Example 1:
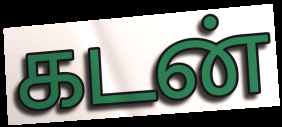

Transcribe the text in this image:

கடன்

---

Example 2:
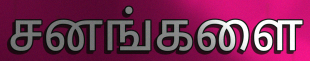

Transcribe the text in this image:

சனங்களை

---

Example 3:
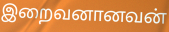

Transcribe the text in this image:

இறைவனானவன்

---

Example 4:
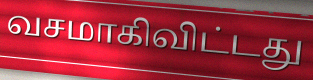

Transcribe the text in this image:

வசமாகிவிட்டது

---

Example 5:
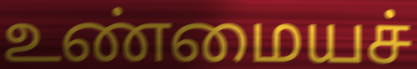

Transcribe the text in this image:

உண்மையச்